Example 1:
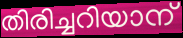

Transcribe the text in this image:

തിരിച്ചറിയാന്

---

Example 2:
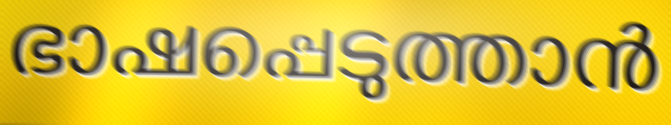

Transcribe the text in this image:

ഭാഷപ്പെടുത്താൻ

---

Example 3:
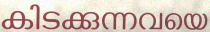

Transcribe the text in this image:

കിടക്കുന്നവയെ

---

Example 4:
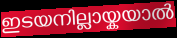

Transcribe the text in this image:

ഇടയനില്ലായ്കയാൽ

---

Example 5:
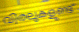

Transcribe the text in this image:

വിരലുകളുണ്ട്